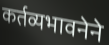
कर्तव्यभावनेने